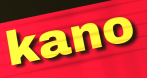
kano